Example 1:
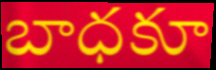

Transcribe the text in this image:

బాధకూ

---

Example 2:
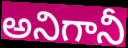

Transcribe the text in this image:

అనిగానీ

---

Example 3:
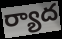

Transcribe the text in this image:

ర్యాద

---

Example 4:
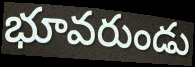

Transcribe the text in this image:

భూవరుండు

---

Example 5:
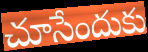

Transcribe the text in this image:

చూసేందుకు